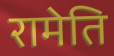
रामेति